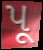
પૂ